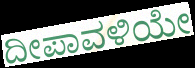
ದೀಪಾವಳಿಯೇ